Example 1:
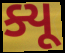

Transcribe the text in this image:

ક્યૂ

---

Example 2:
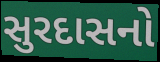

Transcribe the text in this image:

સુરદાસનો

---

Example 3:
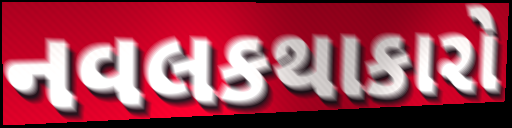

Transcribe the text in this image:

નવલકથાકારો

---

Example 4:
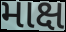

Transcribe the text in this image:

માક્ષ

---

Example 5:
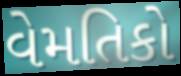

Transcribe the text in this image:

વેમતિકો